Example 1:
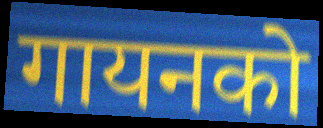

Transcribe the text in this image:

गायनको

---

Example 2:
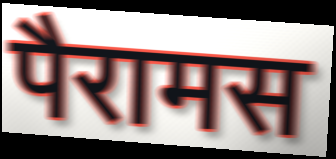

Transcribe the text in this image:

पैरामस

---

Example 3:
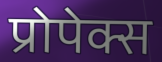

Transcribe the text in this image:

प्रोपेक्स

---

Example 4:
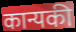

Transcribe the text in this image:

कान्यकी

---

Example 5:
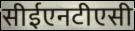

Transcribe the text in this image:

सीईएनटीएसी